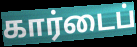
கார்டைப்